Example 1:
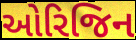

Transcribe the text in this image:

ઓરિજિન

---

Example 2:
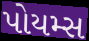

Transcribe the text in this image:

પોયમ્સ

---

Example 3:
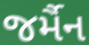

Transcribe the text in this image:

જર્મૈન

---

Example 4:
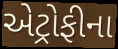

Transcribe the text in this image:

એટ્રોફીના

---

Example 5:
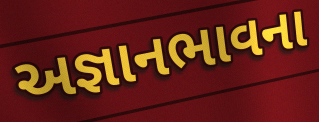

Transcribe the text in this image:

અજ્ઞાનભાવના